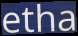
etha